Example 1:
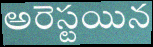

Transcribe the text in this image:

అరెస్టయిన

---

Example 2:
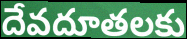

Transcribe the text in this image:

దేవదూతలకు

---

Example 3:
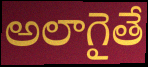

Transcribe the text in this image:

అలాగైతే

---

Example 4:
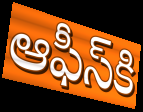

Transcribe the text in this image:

ఆఫీస్‌కి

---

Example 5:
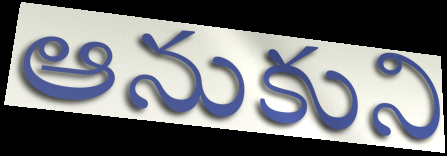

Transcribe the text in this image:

ఆనుకుని